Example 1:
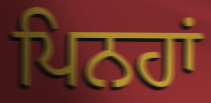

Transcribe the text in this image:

ਪਿਨਹਾਂ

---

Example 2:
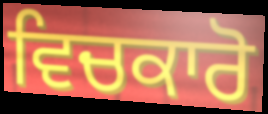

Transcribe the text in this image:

ਵਿਚਕਾਰੋ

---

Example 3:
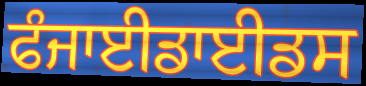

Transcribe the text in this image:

ਫੰਜਾਈਡਾਈਡਸ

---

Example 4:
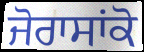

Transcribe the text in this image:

ਜੋਰਾਸਾਂਕੋ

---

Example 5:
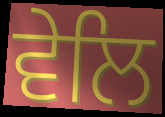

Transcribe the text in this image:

ਵੇਲਿ